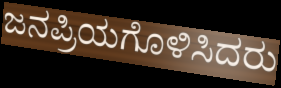
ಜನಪ್ರಿಯಗೊಳಿಸಿದರು